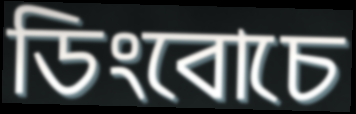
ডিংবোচে